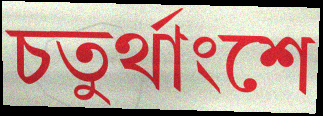
চতুর্থাংশে